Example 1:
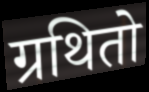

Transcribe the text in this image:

ग्रथितो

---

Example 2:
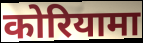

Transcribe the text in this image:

कोरियामा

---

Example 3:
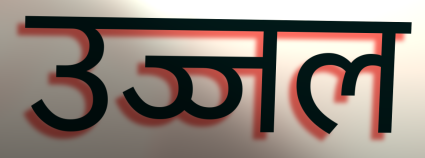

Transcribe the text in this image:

उज्जल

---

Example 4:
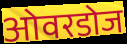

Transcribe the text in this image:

ओवरडोज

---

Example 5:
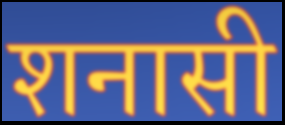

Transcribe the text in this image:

शनासी